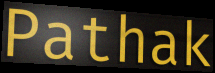
Pathak